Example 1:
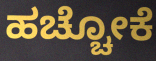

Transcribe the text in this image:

ಹಚ್ಚೋಕೆ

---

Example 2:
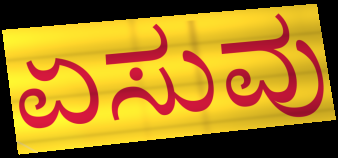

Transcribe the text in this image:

ಏಸುವು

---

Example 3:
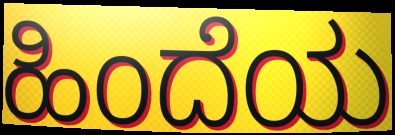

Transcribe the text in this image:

ಹಿಂದೆಯ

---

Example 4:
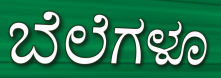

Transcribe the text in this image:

ಬೆಲೆಗಳೂ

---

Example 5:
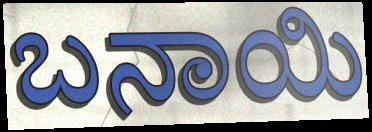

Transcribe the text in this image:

ಬನಾಯಿ